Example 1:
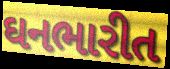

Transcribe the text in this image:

ઘનભારીત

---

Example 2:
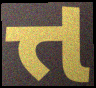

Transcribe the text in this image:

ત્ત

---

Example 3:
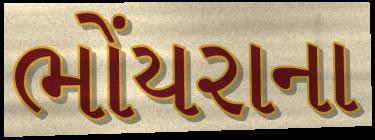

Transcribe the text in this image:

ભોંયરાના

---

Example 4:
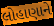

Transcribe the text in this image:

લોહાણાને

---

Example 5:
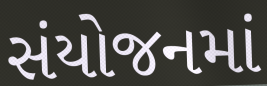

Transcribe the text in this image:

સંયોજનમાં